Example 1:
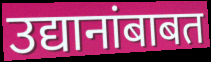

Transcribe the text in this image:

उद्यानांबाबत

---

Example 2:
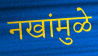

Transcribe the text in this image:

नखांमुळे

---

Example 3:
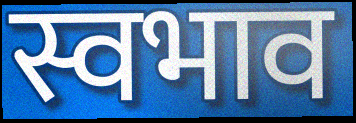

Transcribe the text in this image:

स्वभाव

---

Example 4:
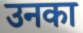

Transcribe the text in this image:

उनका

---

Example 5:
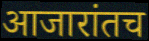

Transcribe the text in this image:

आजारांतच